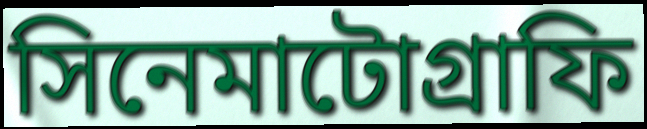
সিনেমাটোগ্রাফি